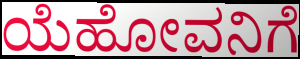
ಯೆಹೋವನಿಗೆ